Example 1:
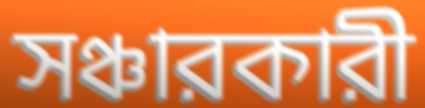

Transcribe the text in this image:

সঞ্চারকারী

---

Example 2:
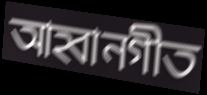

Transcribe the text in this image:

আহ্বানগীত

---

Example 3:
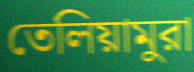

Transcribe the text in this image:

তেলিয়ামুরা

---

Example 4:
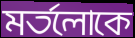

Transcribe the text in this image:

মর্তলোকে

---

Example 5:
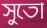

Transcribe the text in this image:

সুতো